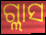
ଗ୍ଲାସ